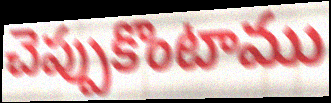
చెప్పుకొంటాము